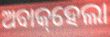
ଅବାକ୍‌ହେଲା